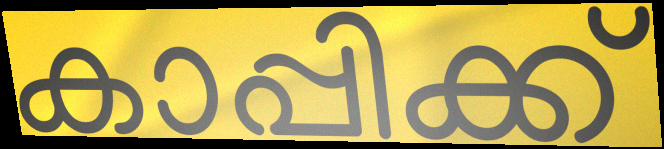
കാപ്പിക്ക്